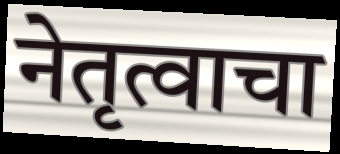
नेतृत्वाचा